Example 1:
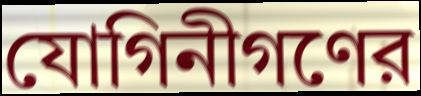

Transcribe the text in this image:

যোগিনীগণের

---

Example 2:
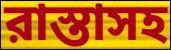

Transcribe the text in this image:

রাস্তাসহ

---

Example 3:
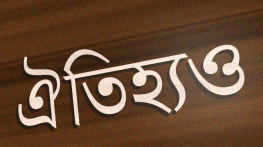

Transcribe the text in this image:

ঐতিহ্যও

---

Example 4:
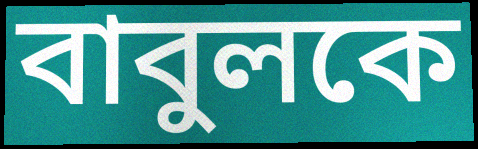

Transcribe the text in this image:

বাবুলকে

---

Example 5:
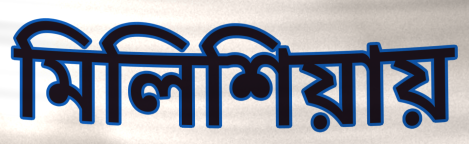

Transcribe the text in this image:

মিলিশিয়ায়